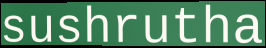
sushrutha